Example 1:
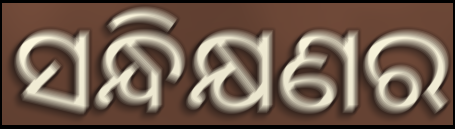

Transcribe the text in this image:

ସନ୍ଧିକ୍ଷଣର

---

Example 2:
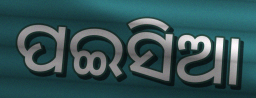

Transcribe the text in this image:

ପଇସିଆ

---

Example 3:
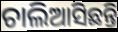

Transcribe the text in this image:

ଚାଲିଆସିଛନ୍ତି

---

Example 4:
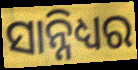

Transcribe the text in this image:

ସାନ୍ନିଧ୍ୟର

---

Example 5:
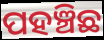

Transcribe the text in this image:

ପହଞ୍ଚିଛ